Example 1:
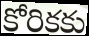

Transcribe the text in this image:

కోరికకు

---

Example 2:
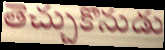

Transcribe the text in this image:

తెచ్చుకొనుడు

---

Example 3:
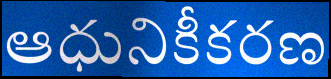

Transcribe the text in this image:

ఆధునికీకరణ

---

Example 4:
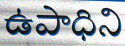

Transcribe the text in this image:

ఉపాధిని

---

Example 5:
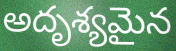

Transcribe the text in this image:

అదృశ్యమైన